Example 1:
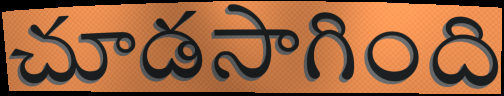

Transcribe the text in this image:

చూడసాగింది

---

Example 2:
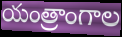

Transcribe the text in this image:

యంత్రాంగాల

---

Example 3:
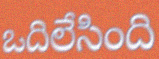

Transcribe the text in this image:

ఒదిలేసింది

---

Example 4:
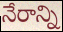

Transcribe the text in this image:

నేరాన్ని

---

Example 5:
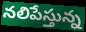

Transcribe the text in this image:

నలిపేస్తున్న